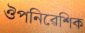
ঔপনিৱেশিক